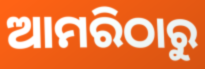
ଆମରିଠାରୁ